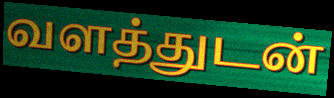
வளத்துடன்